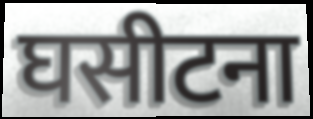
घसीटना